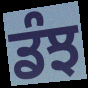
ਡੰਝ